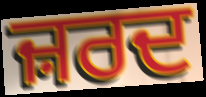
ਜ਼ਰਦ